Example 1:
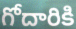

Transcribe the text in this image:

గోదారికి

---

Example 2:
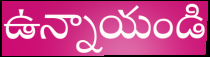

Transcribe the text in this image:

ఉన్నాయండి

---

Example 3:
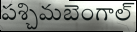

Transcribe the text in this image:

పశ్చిమబెంగాల్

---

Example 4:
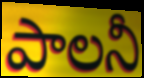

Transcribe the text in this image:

పాలనీ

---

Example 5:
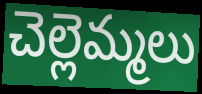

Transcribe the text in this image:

చెల్లెమ్మలు